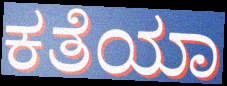
ಕತೆಯಾ